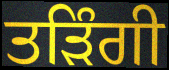
ਤੜਿੰਗੀ